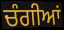
ਚੰਗੀਆਂ